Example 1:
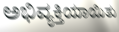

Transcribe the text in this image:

ಅಭಿವ್ಯಕ್ತಿಯಾಯಿತು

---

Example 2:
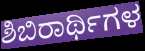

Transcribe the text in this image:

ಶಿಬಿರಾರ್ಥಿಗಳ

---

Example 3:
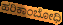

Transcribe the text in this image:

ಹರಿಕಾಂಬೋಧಿ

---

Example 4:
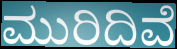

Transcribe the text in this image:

ಮುರಿದಿವೆ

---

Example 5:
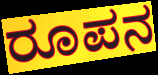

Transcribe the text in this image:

ರೂಪನ